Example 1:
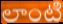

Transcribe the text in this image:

లాంటి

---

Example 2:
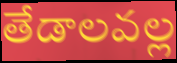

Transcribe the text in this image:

తేడాలవల్ల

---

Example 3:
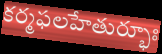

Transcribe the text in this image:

కర్మఫలహేతుర్భూః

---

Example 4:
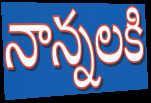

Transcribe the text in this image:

నాన్నలకి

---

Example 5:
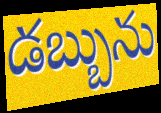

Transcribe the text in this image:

డబ్బును